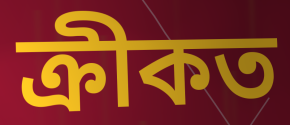
ক্ৰীকত